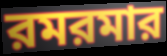
রমরমার